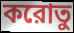
করোতু